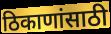
ठिकाणांसाठी